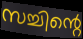
സച്ചിന്റെ